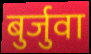
बुर्जुवा